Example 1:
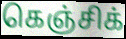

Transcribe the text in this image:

கெஞ்சிக்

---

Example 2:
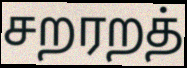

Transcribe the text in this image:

சறரறத்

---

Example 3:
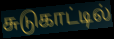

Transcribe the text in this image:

சுடுகாட்டில்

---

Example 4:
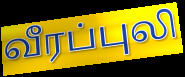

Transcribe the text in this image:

வீரப்புலி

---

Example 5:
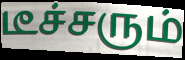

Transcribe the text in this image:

டீச்சரும்